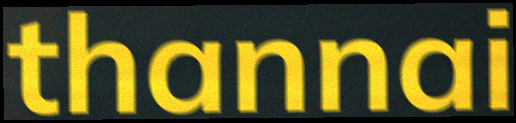
thannai